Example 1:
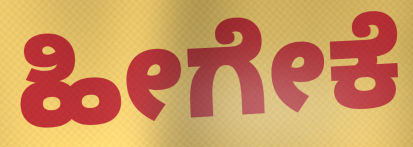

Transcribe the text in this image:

ಹೀಗೇಕೆ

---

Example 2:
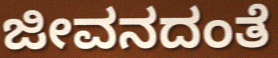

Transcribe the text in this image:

ಜೀವನದಂತೆ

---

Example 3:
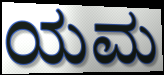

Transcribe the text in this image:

ಯಮ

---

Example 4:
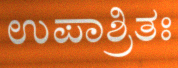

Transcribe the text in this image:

ಉಪಾಶ್ರಿತಃ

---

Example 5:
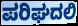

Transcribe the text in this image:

ಪರಿಘದಲಿ